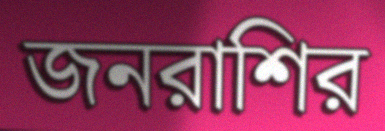
জনরাশির